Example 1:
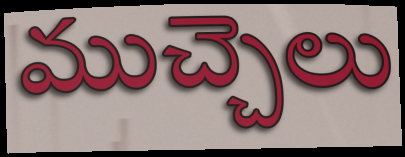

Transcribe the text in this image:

ముచ్చెలు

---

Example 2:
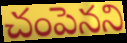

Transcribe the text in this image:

చంపెనని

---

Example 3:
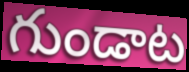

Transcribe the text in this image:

గుండాట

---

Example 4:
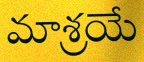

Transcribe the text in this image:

మాశ్రయే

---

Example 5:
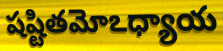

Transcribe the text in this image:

షష్టితమోఽధ్యాయ